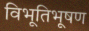
विभूतिभूषण